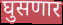
घुसणार